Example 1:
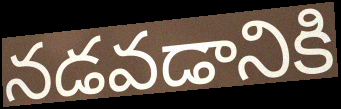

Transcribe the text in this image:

నడవడానికి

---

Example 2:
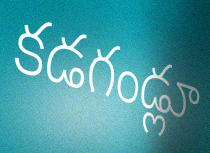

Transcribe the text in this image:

కడగండ్లూ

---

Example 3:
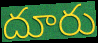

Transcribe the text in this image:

దూరు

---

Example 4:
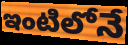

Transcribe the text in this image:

ఇంటిలోనే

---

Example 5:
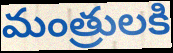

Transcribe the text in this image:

మంత్రులకి